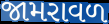
જામરાવળ